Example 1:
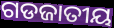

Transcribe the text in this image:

ଗଡଜାତୀୟ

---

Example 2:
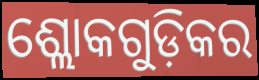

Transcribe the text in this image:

ଶ୍ଲୋକଗୁଡ଼ିକର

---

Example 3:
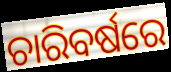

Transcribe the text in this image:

ଚାରିବର୍ଷରେ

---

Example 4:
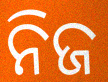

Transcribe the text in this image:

ନିଜ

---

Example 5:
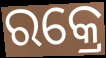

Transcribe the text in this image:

ରକ୍ରେ